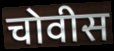
चोवीस